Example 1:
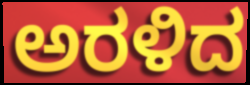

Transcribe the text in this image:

ಅರಳಿದ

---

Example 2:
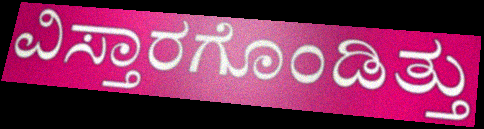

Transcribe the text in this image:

ವಿಸ್ತಾರಗೊಂಡಿತ್ತು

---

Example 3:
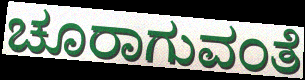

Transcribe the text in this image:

ಚೂರಾಗುವಂತೆ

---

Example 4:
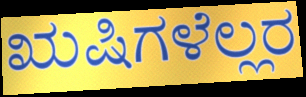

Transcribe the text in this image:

ಋಷಿಗಳೆಲ್ಲರ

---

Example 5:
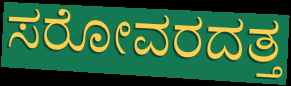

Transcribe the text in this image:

ಸರೋವರದತ್ತ